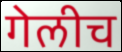
गेलीच